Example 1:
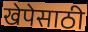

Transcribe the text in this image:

खेपेसाठी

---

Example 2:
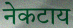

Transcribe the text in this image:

नेकटाय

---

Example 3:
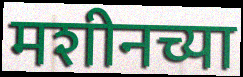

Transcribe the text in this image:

मशीनच्या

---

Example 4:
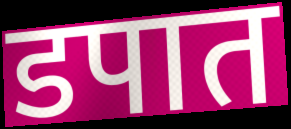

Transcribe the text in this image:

डपात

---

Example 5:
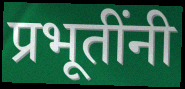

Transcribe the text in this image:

प्रभूतींनी